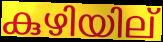
കുഴിയില്